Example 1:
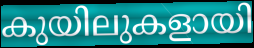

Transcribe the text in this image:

കുയിലുകളായി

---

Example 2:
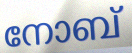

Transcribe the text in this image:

നോബ്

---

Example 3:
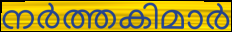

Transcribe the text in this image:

നർത്തകിമാർ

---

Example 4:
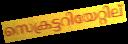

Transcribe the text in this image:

സെക്രട്ടറിയേറ്റില്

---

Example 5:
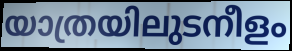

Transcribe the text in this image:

യാത്രയിലുടനീളം